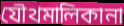
যৌথমালিকানা